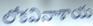
లోకవినాశాయ